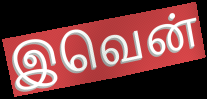
இவென்